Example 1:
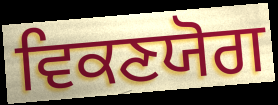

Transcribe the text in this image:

ਵਿਕਣਯੋਗ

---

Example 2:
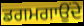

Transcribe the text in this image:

ਡਗਮਗਾਉਂਦੇ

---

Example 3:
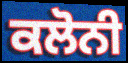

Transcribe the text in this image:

ਕਲੋਨੀ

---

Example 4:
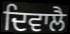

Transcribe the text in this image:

ਦਿਵਾਲੈ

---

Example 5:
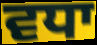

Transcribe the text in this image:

ਵਧਾ